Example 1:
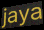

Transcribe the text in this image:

jaya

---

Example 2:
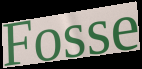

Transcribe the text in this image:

Fosse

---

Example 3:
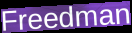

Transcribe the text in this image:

Freedman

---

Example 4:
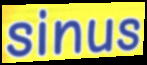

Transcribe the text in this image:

sinus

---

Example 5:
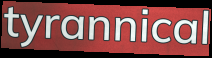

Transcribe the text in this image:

tyrannical